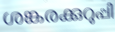
ശങ്കരക്കുറുപ്പി